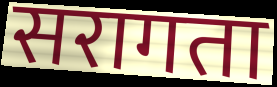
सरागता